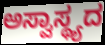
ಅಸ್ವಾಸ್ಥ್ಯದ